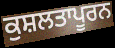
ਕੁਸ਼ਲਤਾਪੂਰਨ